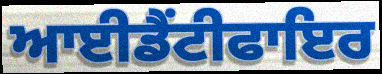
ਆਈਡੈਂਟੀਫਾਇਰ